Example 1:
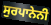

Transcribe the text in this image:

ਸੁਰਪਾਨੇਨੀ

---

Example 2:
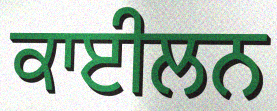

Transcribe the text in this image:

ਕਾਈਲਨ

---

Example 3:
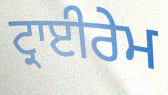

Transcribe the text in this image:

ਟ੍ਰਾਈਰੇਮ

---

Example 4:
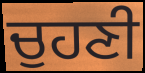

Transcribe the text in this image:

ਚੁਹਣੀ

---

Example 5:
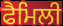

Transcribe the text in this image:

ਫੈਮਿਲੀ